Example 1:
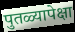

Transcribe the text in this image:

पुतळ्यापेक्षा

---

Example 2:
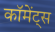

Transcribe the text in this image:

कॉमेंट्स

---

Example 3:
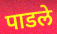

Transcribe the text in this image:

पाडले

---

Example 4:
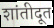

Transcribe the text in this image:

शांतीदूत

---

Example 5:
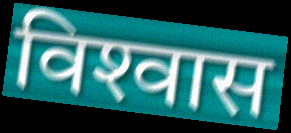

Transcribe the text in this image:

विश्‍वास